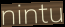
nintu